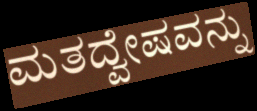
ಮತದ್ವೇಷವನ್ನು